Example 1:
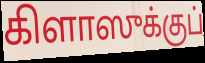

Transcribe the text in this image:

கிளாஸுக்குப்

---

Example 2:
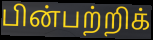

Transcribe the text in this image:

பின்பற்றிக்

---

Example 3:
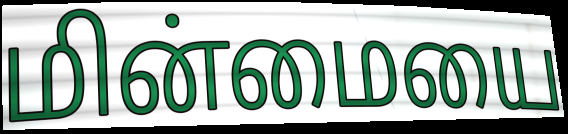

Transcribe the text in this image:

மின்மையை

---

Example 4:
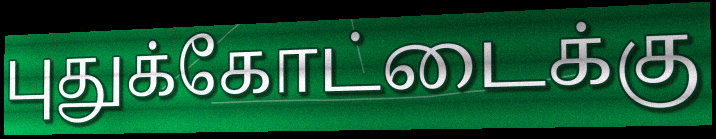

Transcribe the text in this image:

புதுக்கோட்டைக்கு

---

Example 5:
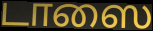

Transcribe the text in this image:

டாஸை